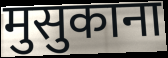
मुसुकाना